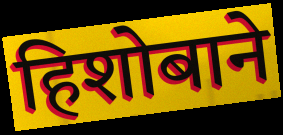
हिशोबाने